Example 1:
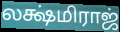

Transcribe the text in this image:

லக்ஷ்மிராஜ்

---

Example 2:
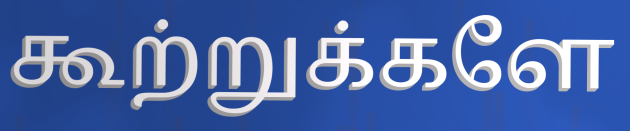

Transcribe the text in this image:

கூற்றுக்களே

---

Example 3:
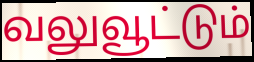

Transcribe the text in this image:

வலுவூட்டும்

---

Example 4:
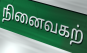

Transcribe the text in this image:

நினைவகற்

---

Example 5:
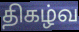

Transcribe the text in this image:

திகழ்வ